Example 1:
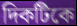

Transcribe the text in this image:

দিকটিকে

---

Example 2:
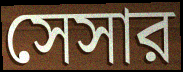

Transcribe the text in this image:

সেসার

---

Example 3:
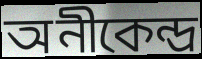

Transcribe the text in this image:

অনীকেন্দ্র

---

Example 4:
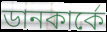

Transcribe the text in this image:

ডানকার্কে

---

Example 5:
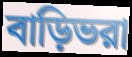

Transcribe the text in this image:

বাড়িভরা